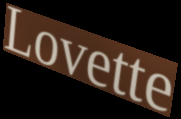
Lovette